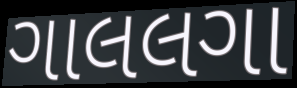
ગાલલગા